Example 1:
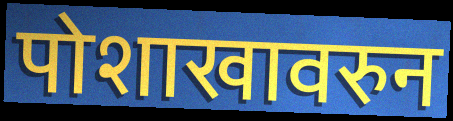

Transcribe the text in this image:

पोशाखावरुन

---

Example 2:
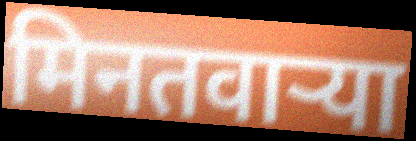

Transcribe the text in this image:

मिनतवार्‍या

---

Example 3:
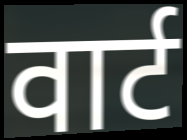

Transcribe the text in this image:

वार्ट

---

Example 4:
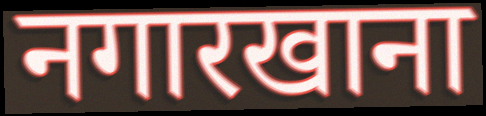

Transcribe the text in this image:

नगारखाना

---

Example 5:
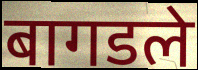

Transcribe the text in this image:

बागडले